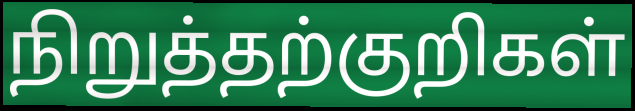
நிறுத்தற்குறிகள்